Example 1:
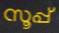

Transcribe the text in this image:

സൂപ്പ്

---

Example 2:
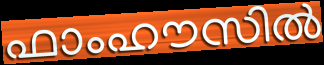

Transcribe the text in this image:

ഫാംഹൗസിൽ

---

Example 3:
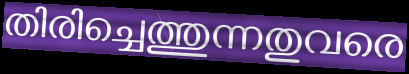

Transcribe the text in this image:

തിരിച്ചെത്തുന്നതുവരെ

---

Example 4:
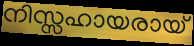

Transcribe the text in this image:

നിസ്സഹായരായ്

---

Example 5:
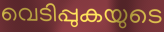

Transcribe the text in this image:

വെടിപ്പുകയുടെ